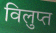
विलुप्त